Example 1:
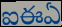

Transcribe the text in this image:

ఐఈఏ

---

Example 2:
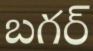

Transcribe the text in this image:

బగర్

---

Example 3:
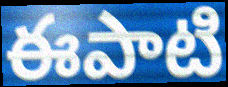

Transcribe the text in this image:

ఈపాటి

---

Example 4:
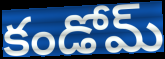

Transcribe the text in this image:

కండోమ్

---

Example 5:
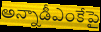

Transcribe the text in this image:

అన్నాడీఎంకేపై